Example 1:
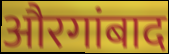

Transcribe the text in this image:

औरगांबाद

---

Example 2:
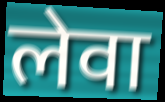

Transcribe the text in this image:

लेवा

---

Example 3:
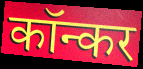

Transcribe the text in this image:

कॉन्कर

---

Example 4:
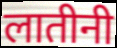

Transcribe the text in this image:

लातीनी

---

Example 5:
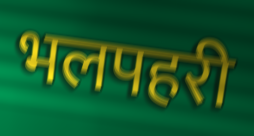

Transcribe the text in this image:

भलपहरी